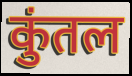
कुंतल